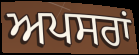
ਅਪਸਰਾਂ